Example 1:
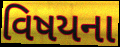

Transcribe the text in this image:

વિષયના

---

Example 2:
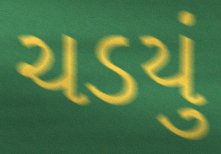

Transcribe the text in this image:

ચડયું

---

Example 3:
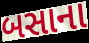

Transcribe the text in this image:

બસાના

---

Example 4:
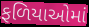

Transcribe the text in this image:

ફળિયાઓમાં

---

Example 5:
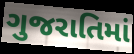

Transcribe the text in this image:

ગુજરાતિમાં